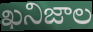
ఖనిజాల